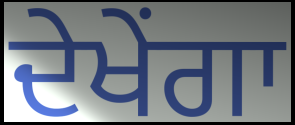
ਦੇਖੇਂਗਾ